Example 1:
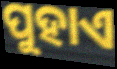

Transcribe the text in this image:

ପୁହାଏ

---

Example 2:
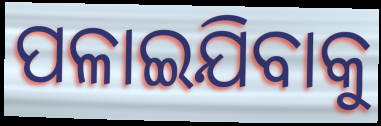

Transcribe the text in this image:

ପଳାଇଯିବାକୁ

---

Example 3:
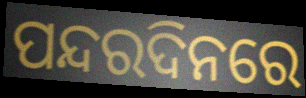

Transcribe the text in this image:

ପନ୍ଦରଦିନରେ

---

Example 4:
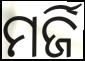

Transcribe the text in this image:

ମର୍ଜି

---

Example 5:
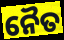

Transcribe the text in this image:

ନୈତ